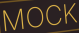
MOCK